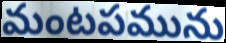
మంటపమును